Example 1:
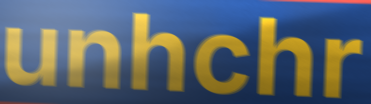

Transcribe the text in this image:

unhchr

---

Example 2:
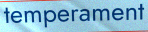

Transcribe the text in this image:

temperament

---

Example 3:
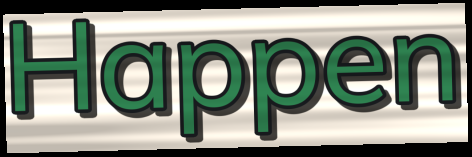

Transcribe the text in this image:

Happen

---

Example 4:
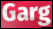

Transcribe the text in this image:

Garg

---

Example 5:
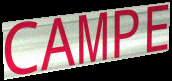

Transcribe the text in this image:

CAMPE